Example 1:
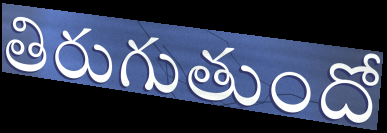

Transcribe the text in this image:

తిరుగుతుందో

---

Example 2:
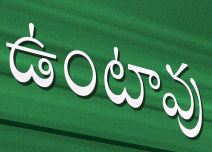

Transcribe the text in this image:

ఉంటావు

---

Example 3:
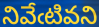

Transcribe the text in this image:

నివేఁటివని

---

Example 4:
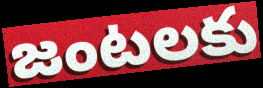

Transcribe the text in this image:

జంటలకు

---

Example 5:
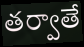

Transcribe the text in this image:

తర్వాతే